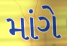
માંગે